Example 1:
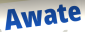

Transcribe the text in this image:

Awate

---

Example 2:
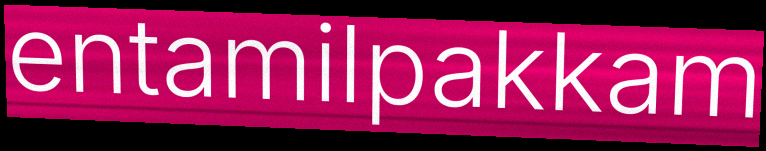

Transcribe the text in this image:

entamilpakkam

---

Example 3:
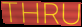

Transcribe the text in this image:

THRU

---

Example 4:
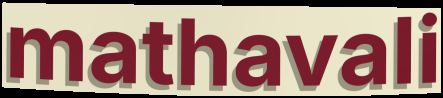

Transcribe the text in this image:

mathavali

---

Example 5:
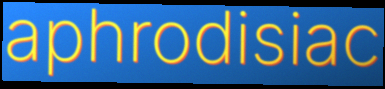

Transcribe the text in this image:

aphrodisiac